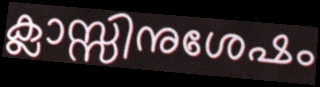
ക്ലാസ്സിനുശേഷം